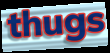
thugs